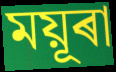
ময়ূৰা